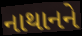
નાથાનને